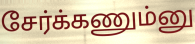
சேர்க்கணும்னு